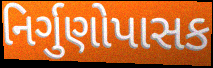
નિર્ગુણોપાસક